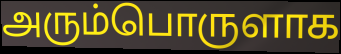
அரும்பொருளாக